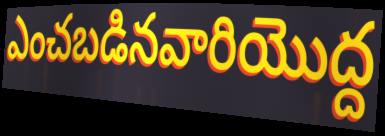
ఎంచబడినవారియొద్ద